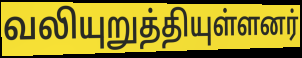
வலியுறுத்தியுள்ளனர்